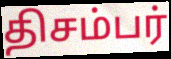
திசம்பர்